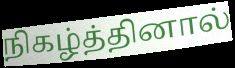
நிகழ்த்தினால்